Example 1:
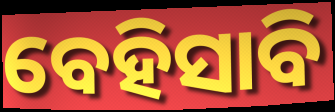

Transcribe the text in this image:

ବେହିସାବି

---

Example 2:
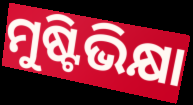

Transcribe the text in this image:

ମୁଷ୍ଟିଭିକ୍ଷା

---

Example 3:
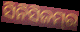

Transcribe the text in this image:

ସିନିସିଜମ୍‌ର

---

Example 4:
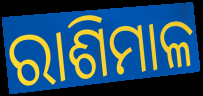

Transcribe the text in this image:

ରାଶିମାଳ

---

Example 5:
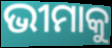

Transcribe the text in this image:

ଭୀମାକୁ